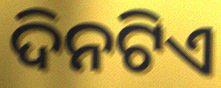
ଦିନଟିଏ